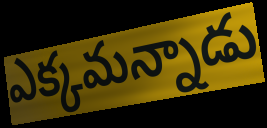
ఎక్కమన్నాడు